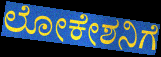
ಲೋಕೇಶನಿಗೆ